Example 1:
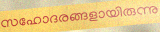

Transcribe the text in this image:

സഹോദരങ്ങളായിരുന്നു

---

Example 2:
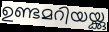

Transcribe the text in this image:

ഉണ്ടമറിയയ്ക്കു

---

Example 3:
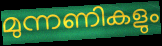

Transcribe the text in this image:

മുന്നണികളും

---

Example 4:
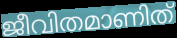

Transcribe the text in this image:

ജീവിതമാണിത്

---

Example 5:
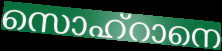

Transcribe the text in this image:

സൊഹ്റാനെ